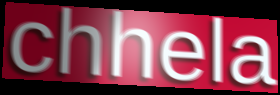
chhela